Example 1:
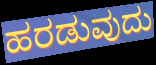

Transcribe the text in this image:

ಹರಡುವುದು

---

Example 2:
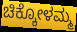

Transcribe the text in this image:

ಚಿಕ್ಕೋಳಮ್ಮ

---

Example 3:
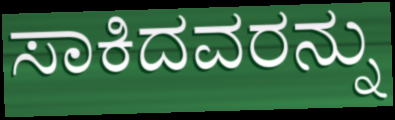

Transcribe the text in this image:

ಸಾಕಿದವರನ್ನು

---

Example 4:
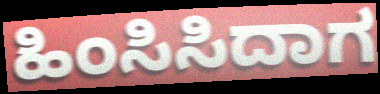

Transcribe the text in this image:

ಹಿಂಸಿಸಿದಾಗ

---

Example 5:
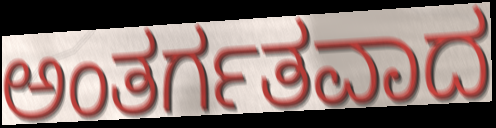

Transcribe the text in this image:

ಅಂತರ್ಗತವಾದ